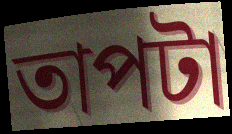
তাপটা